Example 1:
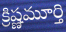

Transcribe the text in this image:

క్రిష్ణమూర్తి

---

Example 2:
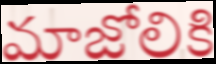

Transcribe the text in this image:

మాజోలికి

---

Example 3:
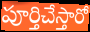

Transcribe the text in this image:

పూర్తిచేస్తారో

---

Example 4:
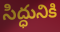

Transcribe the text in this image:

సిద్ధునికి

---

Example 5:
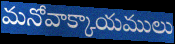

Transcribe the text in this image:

మనోవాక్కాయములు